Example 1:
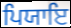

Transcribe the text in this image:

ਪਿਯਾਇ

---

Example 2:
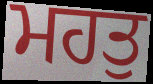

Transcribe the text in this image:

ਮਹਤੁ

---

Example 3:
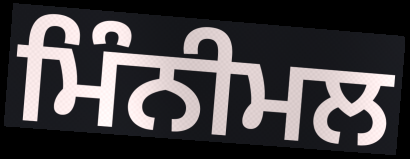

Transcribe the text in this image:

ਮਿੰਨੀਮਲ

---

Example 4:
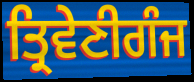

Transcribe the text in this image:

ਤ੍ਰਿਵੇਣੀਗੰਜ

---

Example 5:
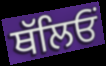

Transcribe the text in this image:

ਥੱਲਿਓਂ